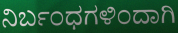
ನಿರ್ಬಂಧಗಳಿಂದಾಗಿ